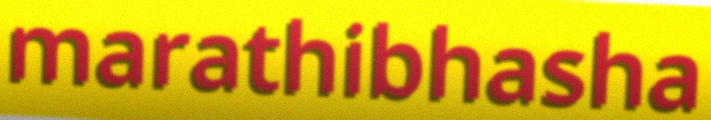
marathibhasha